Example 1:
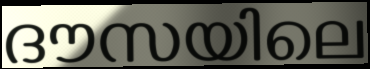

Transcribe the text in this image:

ദൗസയിലെ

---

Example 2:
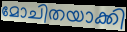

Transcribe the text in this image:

മോചിതയാക്കി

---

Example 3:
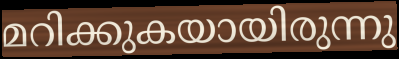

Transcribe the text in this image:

മറിക്കുകയായിരുന്നു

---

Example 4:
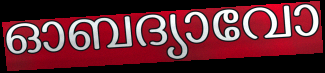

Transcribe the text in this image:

ഓബദ്യാവോ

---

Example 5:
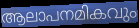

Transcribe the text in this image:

ആലാപനമികവും